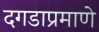
दगडाप्रमाणे